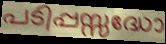
പടിപ്പസ്സദ്ധോ